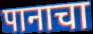
पानाचा